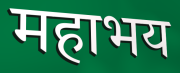
महाभय